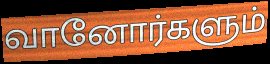
வானோர்களும்